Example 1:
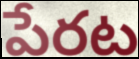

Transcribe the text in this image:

పేరట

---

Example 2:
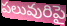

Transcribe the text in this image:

పలువురిపై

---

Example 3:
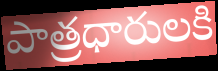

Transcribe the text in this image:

పాత్రధారులకి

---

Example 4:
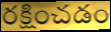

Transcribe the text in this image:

రక్షించడం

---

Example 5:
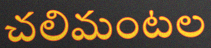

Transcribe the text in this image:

చలిమంటల